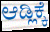
ಆಡ್ಲಿಕ್ಕೆ